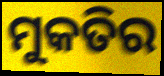
ମୁକତିର